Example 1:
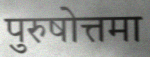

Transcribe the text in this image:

पुरुषोत्तमा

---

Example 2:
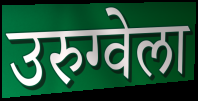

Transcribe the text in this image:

उरुग्वेला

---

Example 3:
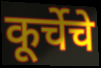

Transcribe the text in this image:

कूर्चेचे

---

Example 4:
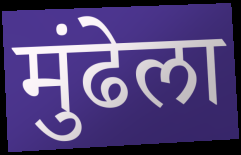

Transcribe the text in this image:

मुंढेला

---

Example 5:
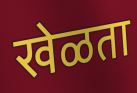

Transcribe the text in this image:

खेळता